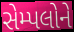
સેમ્પલોને